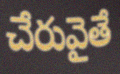
చేరువైతే